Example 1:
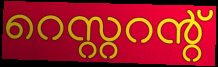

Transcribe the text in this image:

റെസ്റ്ററന്റ്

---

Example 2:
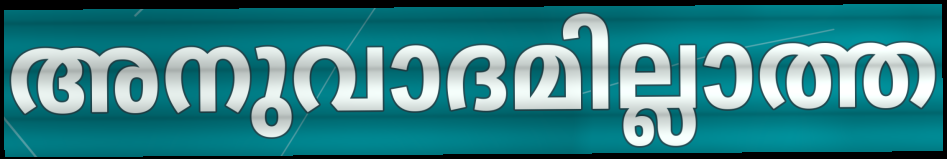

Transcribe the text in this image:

അനുവാദമില്ലാത്ത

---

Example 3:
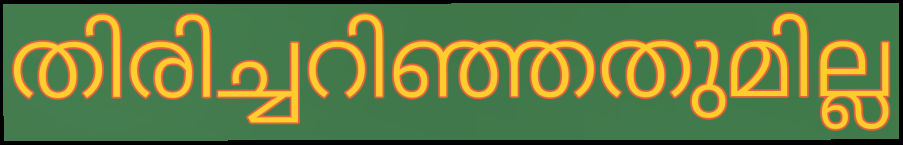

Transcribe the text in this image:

തിരിച്ചറിഞ്ഞതുമില്ല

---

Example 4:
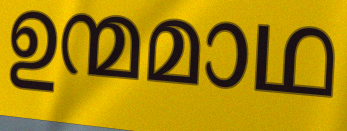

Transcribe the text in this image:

ഉന്മമാഥ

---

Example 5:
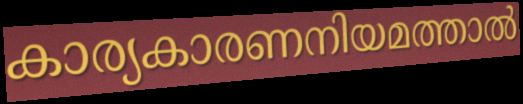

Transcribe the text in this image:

കാര്യകാരണനിയമത്താൽ